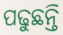
ପଢୁଛନ୍ତି